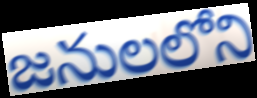
జనులలోని